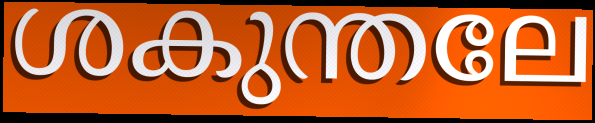
ശകുന്തലേ